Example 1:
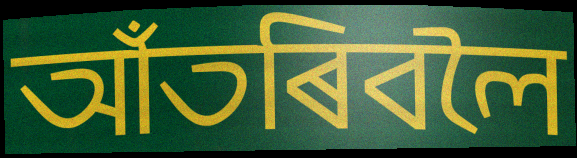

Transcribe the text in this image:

আঁতৰিবলৈ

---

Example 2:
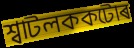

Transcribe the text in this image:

শ্বাটলককটোৰ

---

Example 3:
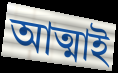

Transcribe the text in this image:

আত্মাই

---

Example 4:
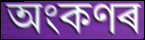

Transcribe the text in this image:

অংকণৰ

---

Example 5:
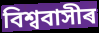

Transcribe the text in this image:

বিশ্ববাসীৰ